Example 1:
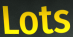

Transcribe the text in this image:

Lots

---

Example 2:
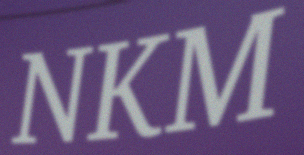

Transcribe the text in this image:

NKM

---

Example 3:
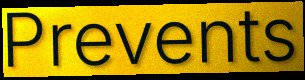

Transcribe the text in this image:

Prevents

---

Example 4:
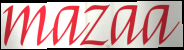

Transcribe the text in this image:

mazaa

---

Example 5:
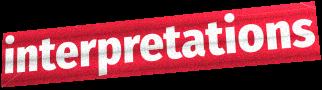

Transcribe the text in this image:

interpretations